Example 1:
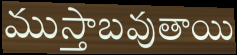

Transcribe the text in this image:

ముస్తాబవుతాయి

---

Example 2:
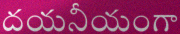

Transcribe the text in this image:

దయనీయంగా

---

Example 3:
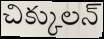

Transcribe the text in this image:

చిక్కులన్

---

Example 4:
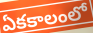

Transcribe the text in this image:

ఏకకాలంలో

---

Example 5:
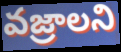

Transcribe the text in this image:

వజ్రాలని